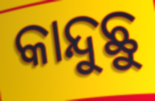
କାନ୍ଦୁଛୁ